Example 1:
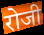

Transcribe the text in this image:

रोजी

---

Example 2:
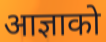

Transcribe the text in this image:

आज्ञाको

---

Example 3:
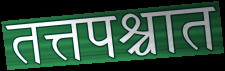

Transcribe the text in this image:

तत्तपश्चात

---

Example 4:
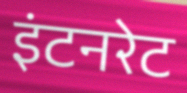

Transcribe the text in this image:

इंटनरेट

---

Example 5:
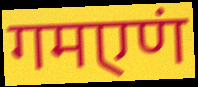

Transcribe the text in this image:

गमएणं